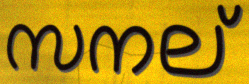
സനല്